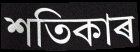
শতিকাৰ